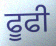
ਫੂਫੀ